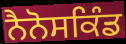
ਨੈਨੋਸਕਿੰਡ